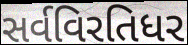
સર્વવિરતિધર